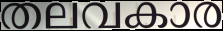
തലവകാര